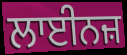
ਲਾਈਨਜ਼